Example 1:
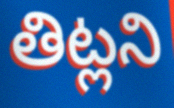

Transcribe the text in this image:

తిట్లని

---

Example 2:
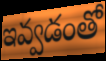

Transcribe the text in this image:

ఇవ్వడంతో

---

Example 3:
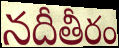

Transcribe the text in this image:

నదీతీరం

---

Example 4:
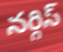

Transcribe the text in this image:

నర్గిస్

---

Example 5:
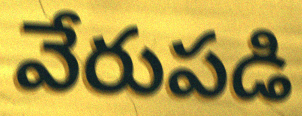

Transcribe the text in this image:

వేరుపడి